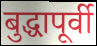
बुद्धापूर्वी